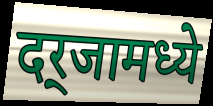
दर्जामध्ये